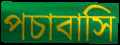
পচাবাসি